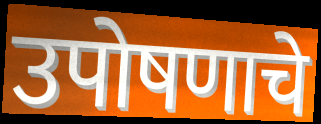
उपोषणाचे